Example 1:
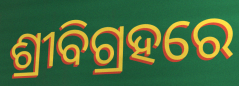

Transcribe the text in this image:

ଶ୍ରୀବିଗ୍ରହରେ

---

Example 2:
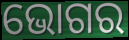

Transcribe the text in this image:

ଭୋଗର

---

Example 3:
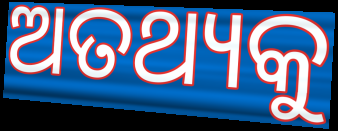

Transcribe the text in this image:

ଅତଥ୍ୟକୁ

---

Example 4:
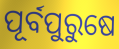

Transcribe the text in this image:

ପୂର୍ବପୁରୁଷେ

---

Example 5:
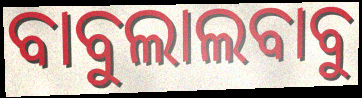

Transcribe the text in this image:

ବାବୁଲାଲବାବୁ